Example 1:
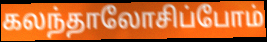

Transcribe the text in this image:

கலந்தாலோசிப்போம்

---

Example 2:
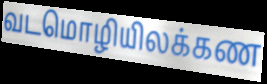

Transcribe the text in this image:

வடமொழியிலக்கண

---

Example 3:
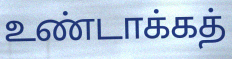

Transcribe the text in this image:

உண்டாக்கத்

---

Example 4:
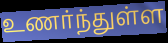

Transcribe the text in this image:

உணர்ந்துள்ள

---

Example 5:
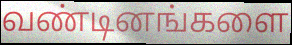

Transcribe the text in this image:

வண்டினங்களை